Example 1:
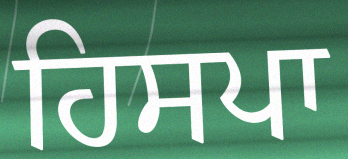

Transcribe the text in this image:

ਹਿਸਪਾ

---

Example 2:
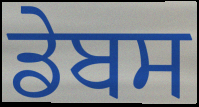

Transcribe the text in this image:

ਡੇਬਸ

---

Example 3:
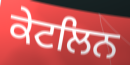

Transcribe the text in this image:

ਕੇਟਲਿਨ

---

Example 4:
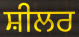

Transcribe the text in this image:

ਸ਼ੀਲਰ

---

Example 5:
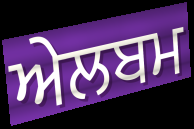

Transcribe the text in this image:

ਅੇਲਬਮ